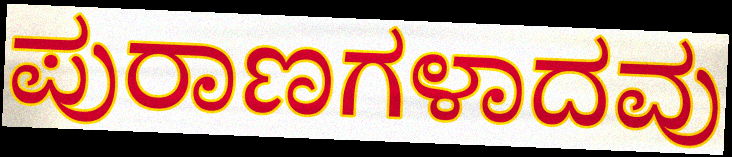
ಪುರಾಣಗಳಾದವು